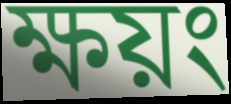
ক্ষয়ং